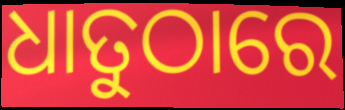
ଧାତୁଠାରେ